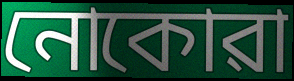
নোকোৱা